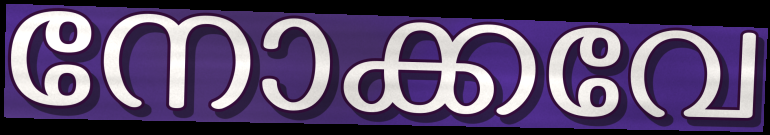
നോക്കവേ